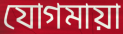
যোগমায়া